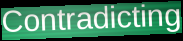
Contradicting